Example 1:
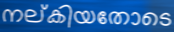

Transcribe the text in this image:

നല്കിയതോടെ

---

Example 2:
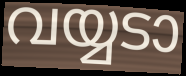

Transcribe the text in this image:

വയ്യടാ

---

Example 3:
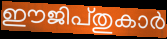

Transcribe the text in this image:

ഈജിപ്തുകാർ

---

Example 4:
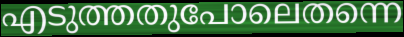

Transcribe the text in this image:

എടുത്തതുപോലെതന്നെ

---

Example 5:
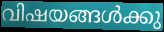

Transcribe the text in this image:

വിഷയങ്ങൾക്കു